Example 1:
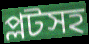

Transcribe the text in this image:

প্লটসহ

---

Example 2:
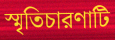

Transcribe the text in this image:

স্মৃতিচারণাটি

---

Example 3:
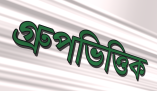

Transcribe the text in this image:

গ্রুপভিত্তিক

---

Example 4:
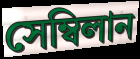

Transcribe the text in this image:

সেম্বিলান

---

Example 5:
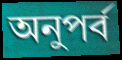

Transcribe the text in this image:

অনুপর্ব